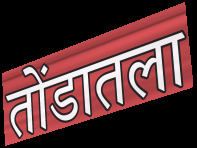
तोंडातला